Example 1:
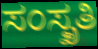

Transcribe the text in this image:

ಸಂಸ್ಖೃತಿ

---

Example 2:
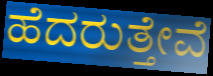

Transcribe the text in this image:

ಹೆದರುತ್ತೇವೆ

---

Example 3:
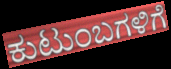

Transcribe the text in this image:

ಕುಟುಂಬಗಳಿಗೆ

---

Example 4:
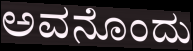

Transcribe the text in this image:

ಅವನೊಂದು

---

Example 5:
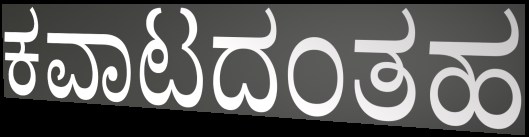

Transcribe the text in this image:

ಕವಾಟದಂತಹ